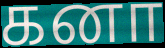
கனா